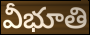
వీభూతి